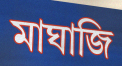
মাঘাজি